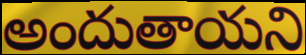
అందుతాయని